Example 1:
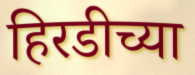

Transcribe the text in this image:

हिरडीच्या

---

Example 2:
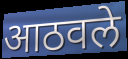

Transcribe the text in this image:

आठवले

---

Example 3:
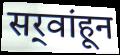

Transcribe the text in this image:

सर्वांहून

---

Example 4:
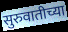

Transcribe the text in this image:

सुरुवातीच्या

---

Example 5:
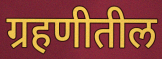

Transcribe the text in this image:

ग्रहणीतील